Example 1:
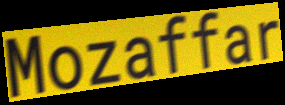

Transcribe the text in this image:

Mozaffar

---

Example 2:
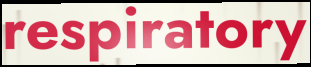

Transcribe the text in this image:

respiratory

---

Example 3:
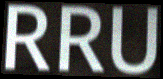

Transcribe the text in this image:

RRU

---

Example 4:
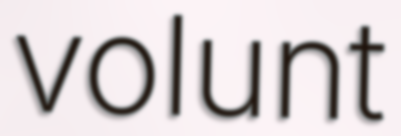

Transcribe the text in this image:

volunt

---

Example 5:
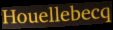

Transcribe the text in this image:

Houellebecq